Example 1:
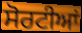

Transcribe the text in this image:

ਸੋਰਟੀਆਂ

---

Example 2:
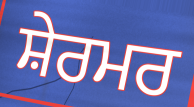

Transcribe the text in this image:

ਸ਼ੇਰਮਰ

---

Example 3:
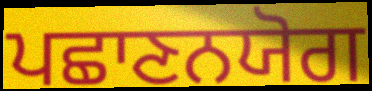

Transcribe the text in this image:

ਪਛਾਣਨਯੋਗ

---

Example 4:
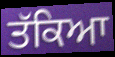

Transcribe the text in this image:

ਤੱਕਿਆ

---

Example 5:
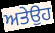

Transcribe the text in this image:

ਅਤੇਉਹ